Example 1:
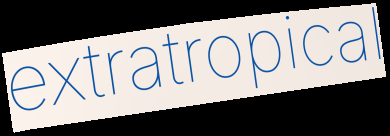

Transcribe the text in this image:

extratropical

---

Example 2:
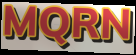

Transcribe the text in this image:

MQRN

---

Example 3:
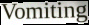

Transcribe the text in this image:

Vomiting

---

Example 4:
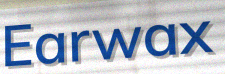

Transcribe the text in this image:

Earwax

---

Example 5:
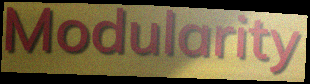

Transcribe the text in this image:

Modularity